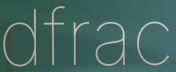
dfrac